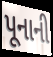
પૂનાની